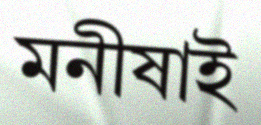
মনীষাই